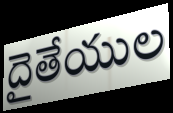
దైతేయుల